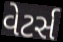
વેટર્સ